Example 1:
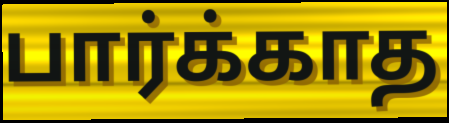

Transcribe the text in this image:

பார்க்காத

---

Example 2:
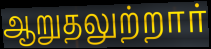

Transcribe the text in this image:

ஆறுதலுற்றார்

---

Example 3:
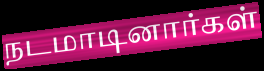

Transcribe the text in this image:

நடமாடினார்கள்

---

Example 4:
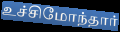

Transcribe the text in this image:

உச்சிமோந்தார்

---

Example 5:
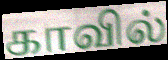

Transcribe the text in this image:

காவில்